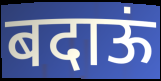
बदाऊं